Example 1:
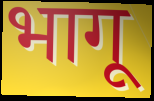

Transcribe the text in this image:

भागू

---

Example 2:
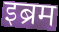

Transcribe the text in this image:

इब्रम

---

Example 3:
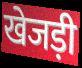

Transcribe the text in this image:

खेजड़ी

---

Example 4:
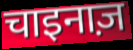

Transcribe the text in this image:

चाइनाज़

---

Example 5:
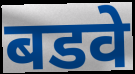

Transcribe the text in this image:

बडवे